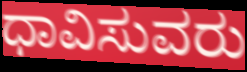
ಧಾವಿಸುವರು